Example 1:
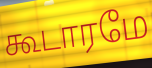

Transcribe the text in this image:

கூடாரமே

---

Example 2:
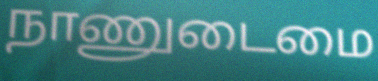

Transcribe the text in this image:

நாணுடைமை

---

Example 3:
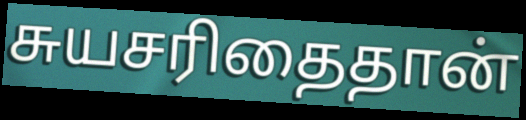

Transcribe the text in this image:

சுயசரிதைதான்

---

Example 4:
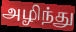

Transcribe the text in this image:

அழிந்து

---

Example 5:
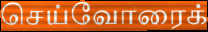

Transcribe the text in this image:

செய்வோரைக்